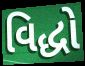
વિદ્ધો